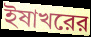
ইষাখরের